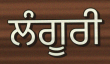
ਲੰਗੂਰੀ